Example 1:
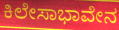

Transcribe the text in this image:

ಕಿಲೇಸಾಭಾವೇನ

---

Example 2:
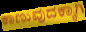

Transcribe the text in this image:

ಕಾಣುವುದಕ್ಕಾಗಿ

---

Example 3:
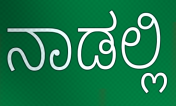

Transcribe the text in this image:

ನಾಡಲ್ಲಿ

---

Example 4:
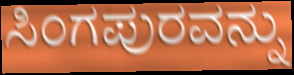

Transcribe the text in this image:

ಸಿಂಗಪುರವನ್ನು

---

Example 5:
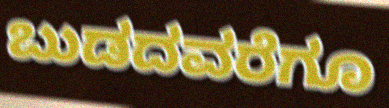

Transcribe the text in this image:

ಬುಡದವರೆಗೂ